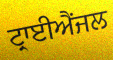
ਟ੍ਰਾਈਐਂਜਲ